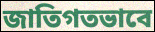
জাতিগতভাবে